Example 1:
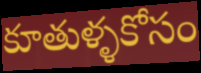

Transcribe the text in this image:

కూతుళ్ళకోసం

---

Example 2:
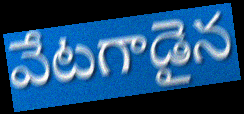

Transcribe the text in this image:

వేటగాడైన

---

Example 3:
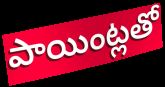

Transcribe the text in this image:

పాయింట్లతో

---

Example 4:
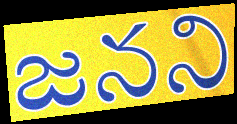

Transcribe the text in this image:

జనని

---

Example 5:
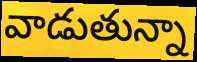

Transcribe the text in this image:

వాడుతున్నా